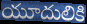
యూదులికి